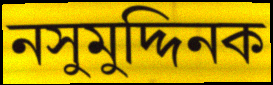
নসুমুদ্দিনক